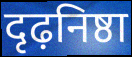
दृढ़निष्ठा